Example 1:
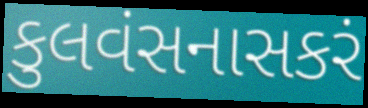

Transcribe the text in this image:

કુલવંસનાસકરં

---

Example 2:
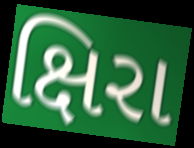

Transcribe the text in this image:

ક્ષિરા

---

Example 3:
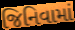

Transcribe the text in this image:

જિનિવામાં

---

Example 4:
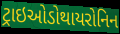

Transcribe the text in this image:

ટ્રાઇઓડોથાયરોનિન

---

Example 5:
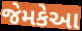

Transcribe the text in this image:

જેમકેઆ